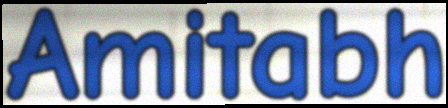
Amitabh